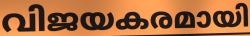
വിജയകരമായി